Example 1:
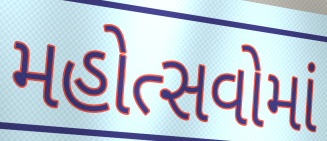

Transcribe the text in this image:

મહોત્સવોમાં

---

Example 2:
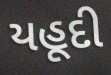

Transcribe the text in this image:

યહૂદી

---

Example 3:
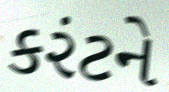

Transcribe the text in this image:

કરંટને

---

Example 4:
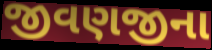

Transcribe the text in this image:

જીવણજીના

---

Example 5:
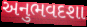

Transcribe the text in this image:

અનુભવદશા